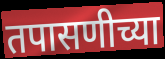
तपासणीच्या